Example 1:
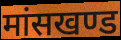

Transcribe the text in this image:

मांसखण्ड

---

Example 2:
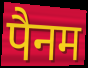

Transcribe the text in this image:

पैनम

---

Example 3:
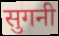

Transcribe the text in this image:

सुगनी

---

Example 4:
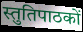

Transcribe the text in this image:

स्तुतिपाठकों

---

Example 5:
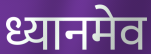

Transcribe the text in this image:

ध्यानमेव